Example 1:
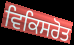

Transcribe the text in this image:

ਵਿਕਿਸਰੋਤ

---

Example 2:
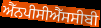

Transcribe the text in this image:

ਐੱਨਪੀਸੀਐੱਸਸੀਬੀ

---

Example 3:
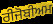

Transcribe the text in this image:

ਰੀਜੋਬੀਅਮ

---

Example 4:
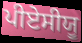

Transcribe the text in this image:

ਪੀਏਸੀਯੂ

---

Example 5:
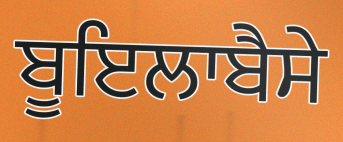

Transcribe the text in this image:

ਬੂਇਲਾਬੈਸੇ